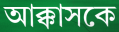
আক্কাসকে